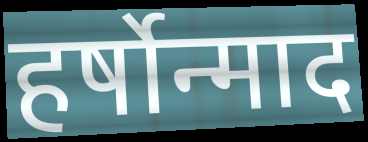
हर्षोन्माद